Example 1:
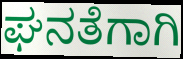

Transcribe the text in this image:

ಘನತೆಗಾಗಿ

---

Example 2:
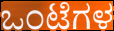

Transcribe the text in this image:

ಒಂಟೆಗಳ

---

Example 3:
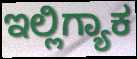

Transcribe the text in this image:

ಇಲ್ಲಿಗ್ಯಾಕ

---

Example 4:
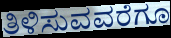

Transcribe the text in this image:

ತಿಳಿಸುವವರೆಗೂ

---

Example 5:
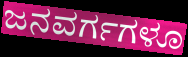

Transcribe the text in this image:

ಜನವರ್ಗಗಳೂ